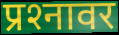
प्रश्नावर